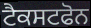
ਟੈਕਸਟਫੋਨ